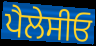
ਪੈਲੇਸੀਓ